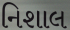
નિશાલ